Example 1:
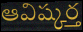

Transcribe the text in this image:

ఆవిష్కర్త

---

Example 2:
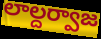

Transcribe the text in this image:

లాల్దర్వాజ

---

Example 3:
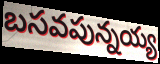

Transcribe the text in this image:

బసవపున్నయ్య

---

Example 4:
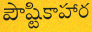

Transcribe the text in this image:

పౌష్టికాహార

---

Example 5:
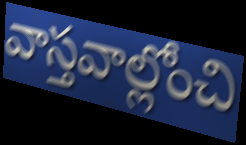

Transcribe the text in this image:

వాస్తవాల్లోంచి